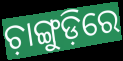
ଚ଼ାଙ୍ଗୁଡ଼ିରେ